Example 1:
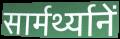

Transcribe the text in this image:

सार्मर्थ्यानें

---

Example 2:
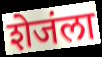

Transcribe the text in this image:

शेजंला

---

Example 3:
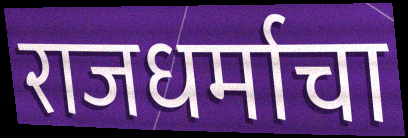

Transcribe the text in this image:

राजधर्माचा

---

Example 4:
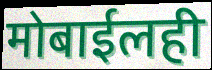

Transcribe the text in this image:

मोबाईलही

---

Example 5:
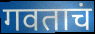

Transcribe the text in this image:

गवताचं